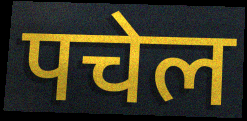
पचेल